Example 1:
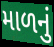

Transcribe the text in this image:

માળનું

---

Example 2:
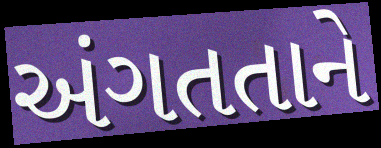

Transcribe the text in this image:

અંગતતાને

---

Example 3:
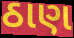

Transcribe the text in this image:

ઠાણ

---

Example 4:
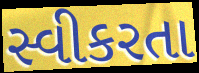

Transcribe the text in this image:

સ્વીકરતા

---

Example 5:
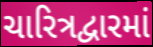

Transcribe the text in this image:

ચારિત્રદ્વારમાં